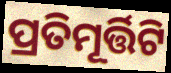
ପ୍ରତିମୂର୍ତ୍ତିଟି